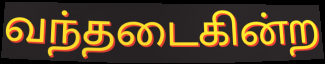
வந்தடைகின்ற